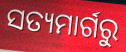
ସତ୍ୟମାର୍ଗରୁ